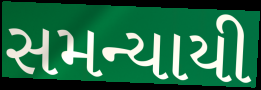
સમન્યાયી